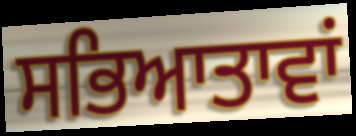
ਸਭਿਆਤਾਵਾਂ